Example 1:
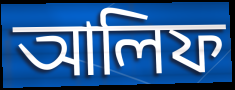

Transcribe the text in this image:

আলিফ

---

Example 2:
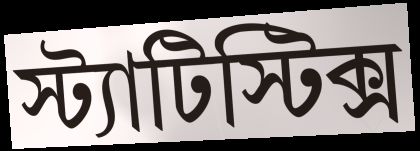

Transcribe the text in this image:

স্ট্যাটিস্টিক্স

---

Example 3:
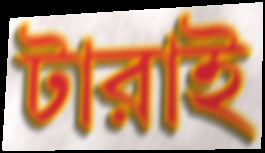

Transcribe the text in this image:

টারাই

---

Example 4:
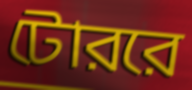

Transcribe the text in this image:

টোররে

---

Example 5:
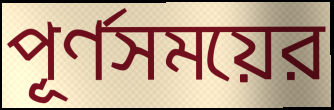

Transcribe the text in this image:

পূর্ণসময়ের